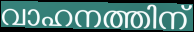
വാഹനത്തിന്